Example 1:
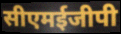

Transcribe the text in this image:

सीएमईजीपी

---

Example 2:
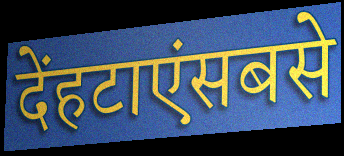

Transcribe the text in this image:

देंहटाएंसबसे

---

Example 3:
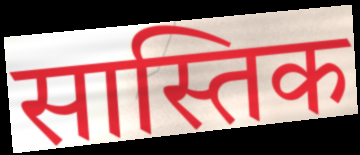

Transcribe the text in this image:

सास्तिक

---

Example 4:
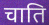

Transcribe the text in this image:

चाति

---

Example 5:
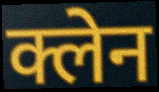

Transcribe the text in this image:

क्लेन